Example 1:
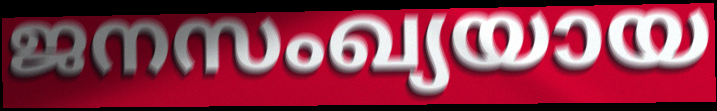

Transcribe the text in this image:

ജനസംഖ്യയായ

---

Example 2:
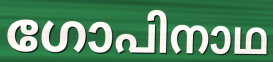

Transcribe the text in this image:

ഗോപിനാഥ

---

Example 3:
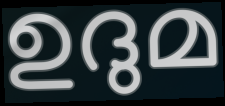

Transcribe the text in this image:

ഉദുമ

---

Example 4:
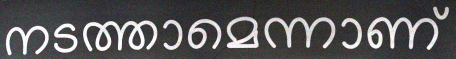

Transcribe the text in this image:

നടത്താമെന്നാണ്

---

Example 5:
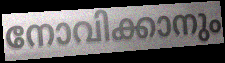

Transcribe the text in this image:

നോവിക്കാനും